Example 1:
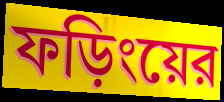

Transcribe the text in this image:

ফড়িংয়ের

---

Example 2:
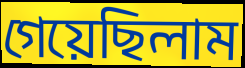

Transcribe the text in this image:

গেয়েছিলাম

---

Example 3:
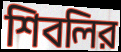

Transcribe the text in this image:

শিবলির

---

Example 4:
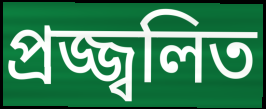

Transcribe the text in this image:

প্রজ্জ্বলিত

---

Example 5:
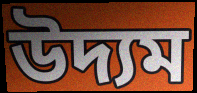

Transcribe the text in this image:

উদ্যম